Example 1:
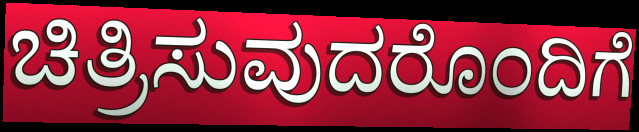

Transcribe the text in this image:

ಚಿತ್ರಿಸುವುದರೊಂದಿಗೆ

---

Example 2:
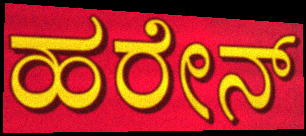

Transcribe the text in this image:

ಹರೇನ್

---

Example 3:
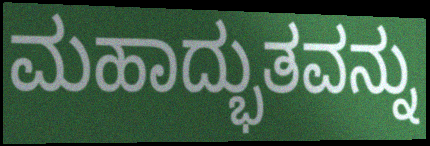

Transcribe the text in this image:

ಮಹಾದ್ಭುತವನ್ನು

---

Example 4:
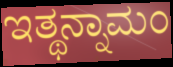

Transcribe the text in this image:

ಇತ್ಥನ್ನಾಮಂ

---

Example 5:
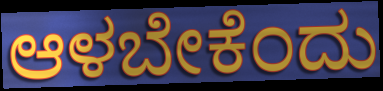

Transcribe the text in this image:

ಆಳಬೇಕೆಂದು